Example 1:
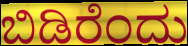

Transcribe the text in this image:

ಬಿಡಿರೆಂದು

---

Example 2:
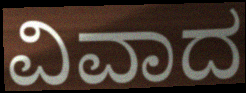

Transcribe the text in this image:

ವಿವಾದ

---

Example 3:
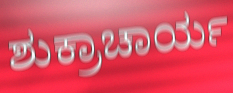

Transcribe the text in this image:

ಶುಕ್ರಾಚಾರ್ಯ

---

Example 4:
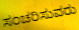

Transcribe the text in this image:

ಸಂಚರಿಸುವರು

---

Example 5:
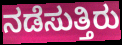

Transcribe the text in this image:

ನಡೆಸುತ್ತಿರು